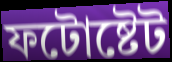
ফটোষ্টেট